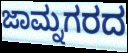
ಜಾಮ್ನಗರದ